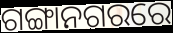
ଗଙ୍ଗାନଗରରେ